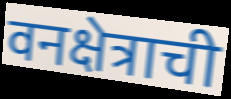
वनक्षेत्राची